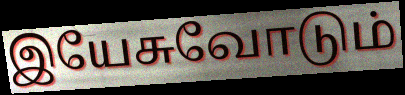
இயேசுவோடும்